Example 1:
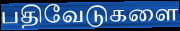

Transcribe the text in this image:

பதிவேடுகளை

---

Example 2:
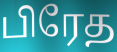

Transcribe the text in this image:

பிரேத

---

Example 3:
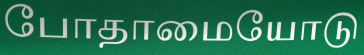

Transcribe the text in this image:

போதாமையோடு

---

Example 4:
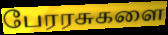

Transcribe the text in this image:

பேரரசுகளை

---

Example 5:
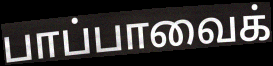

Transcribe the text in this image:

பாப்பாவைக்